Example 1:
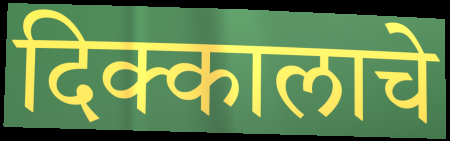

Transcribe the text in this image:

दिक्कालाचे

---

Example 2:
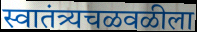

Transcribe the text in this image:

स्वातंत्र्यचळवळीला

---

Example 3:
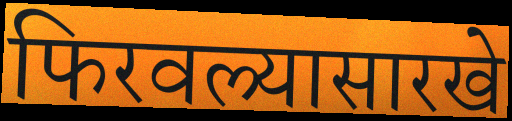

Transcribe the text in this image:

फिरवल्यासारखे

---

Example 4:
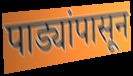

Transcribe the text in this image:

पाड्यांपासून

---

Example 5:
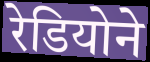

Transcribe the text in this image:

रेडियोने